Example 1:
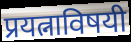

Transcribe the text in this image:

प्रयत्नाविषयी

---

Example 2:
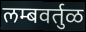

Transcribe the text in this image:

लम्बवर्तुळ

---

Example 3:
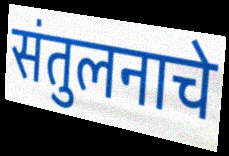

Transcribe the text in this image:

संतुलनाचे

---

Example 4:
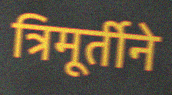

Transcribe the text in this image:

त्रिमूर्तीने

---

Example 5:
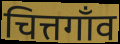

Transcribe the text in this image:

चित्तगाँव